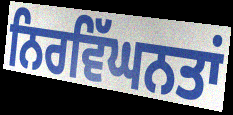
ਨਿਰਵਿੱਘਨਤਾਂ